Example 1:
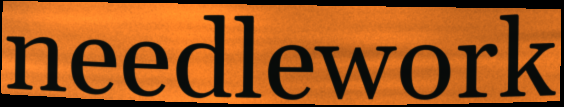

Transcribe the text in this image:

needlework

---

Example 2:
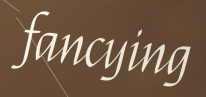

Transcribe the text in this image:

fancying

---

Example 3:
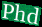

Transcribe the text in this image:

Phd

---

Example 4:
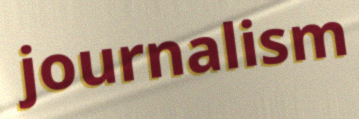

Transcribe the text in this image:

journalism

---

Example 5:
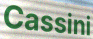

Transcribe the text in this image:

Cassini